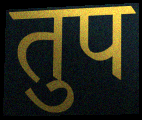
तुप